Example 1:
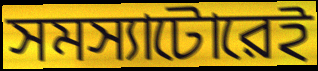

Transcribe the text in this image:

সমস্যাটোৱেই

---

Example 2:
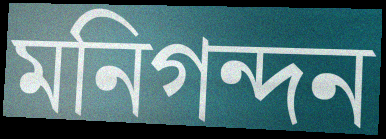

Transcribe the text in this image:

মনিগন্দন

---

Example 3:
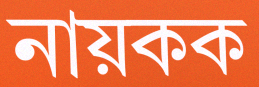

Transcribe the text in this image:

নায়কক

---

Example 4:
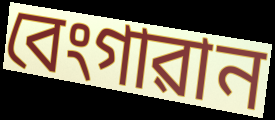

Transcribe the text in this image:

বেংগাৱান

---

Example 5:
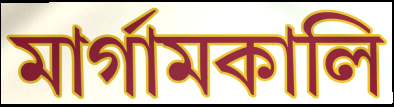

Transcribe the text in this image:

মাৰ্গামকালি